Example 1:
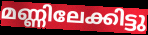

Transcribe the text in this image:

മണ്ണിലേക്കിട്ടു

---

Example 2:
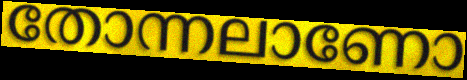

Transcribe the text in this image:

തോന്നലാണോ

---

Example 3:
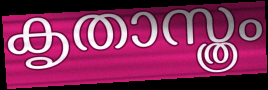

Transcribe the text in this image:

കൃതാസ്ത്രം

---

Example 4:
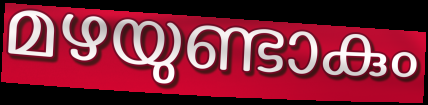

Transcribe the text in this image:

മഴയുണ്ടാകും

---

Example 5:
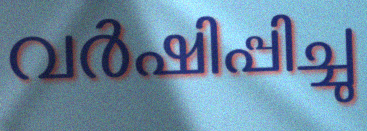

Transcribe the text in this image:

വർഷിപ്പിച്ചു